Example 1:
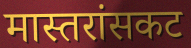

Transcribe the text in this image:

मास्तरांसकट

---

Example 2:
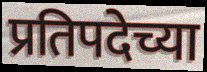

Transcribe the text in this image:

प्रतिपदेच्या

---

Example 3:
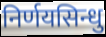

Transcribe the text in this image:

निर्णयसिन्धु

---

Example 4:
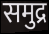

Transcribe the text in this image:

समुद्र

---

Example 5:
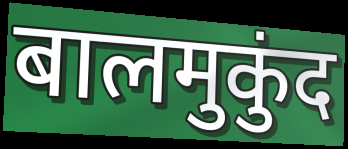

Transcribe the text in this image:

बालमुकुंद